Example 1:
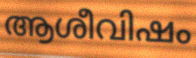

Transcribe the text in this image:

ആശീവിഷം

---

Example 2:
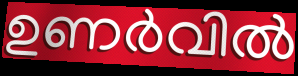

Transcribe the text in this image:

ഉണർവിൽ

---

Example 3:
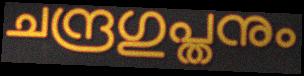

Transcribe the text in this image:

ചന്ദ്രഗുപ്തനും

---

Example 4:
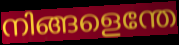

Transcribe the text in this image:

നിങ്ങളെന്തേ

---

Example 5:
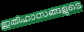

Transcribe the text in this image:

ഇതിഹാസങ്ങളുടെ